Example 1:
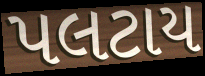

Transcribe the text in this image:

પલટાય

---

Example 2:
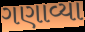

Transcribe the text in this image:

ગણાવ્યા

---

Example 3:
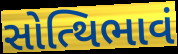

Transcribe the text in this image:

સોત્થિભાવં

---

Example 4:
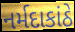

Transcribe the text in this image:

નર્મદાકાંઠે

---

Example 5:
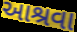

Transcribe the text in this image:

આશ્રવા